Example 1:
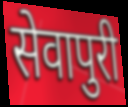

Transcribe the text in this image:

सेवापुरी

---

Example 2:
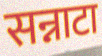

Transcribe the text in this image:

सन्नाटा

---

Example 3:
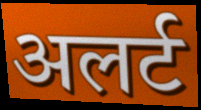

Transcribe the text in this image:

अलर्ट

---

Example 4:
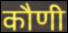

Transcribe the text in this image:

कौणी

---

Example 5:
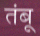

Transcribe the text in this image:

तंबू